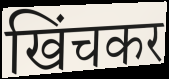
खिंचकर